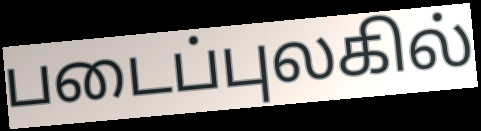
படைப்புலகில்